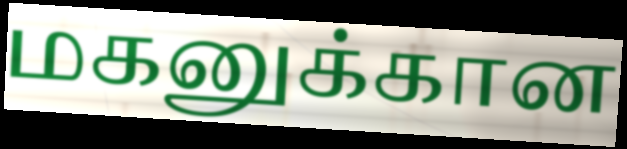
மகனுக்கான